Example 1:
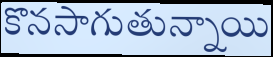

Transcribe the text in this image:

కొనసాగుతున్నాయి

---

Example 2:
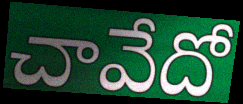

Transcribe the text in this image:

చావేదో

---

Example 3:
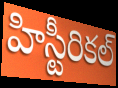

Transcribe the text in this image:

హిస్టీరికల్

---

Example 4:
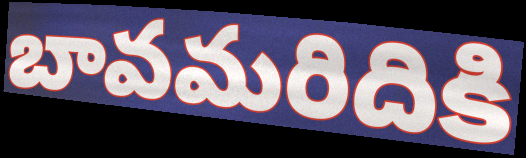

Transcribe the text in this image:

బావమరిదికి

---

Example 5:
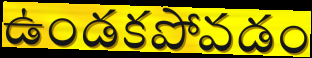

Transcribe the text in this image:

ఉండకపోవడం